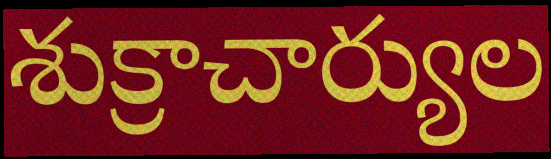
శుక్రాచార్యుల